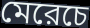
মেরেচে